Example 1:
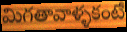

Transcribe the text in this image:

మిగతావాళ్ళకంటే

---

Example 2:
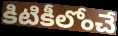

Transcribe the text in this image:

కిటికీలోంచే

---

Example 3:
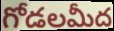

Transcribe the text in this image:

గోడలమీద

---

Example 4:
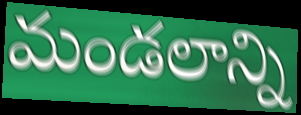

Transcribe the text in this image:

మండలాన్ని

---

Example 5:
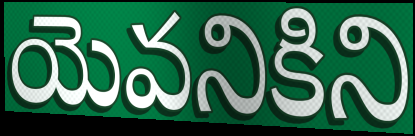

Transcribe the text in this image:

యెవనికిని